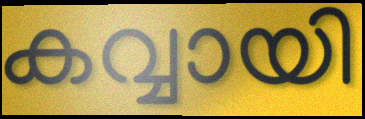
കവ്വായി